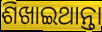
ଶିଖାଇଥାନ୍ତା